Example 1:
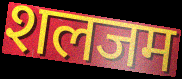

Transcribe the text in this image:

शलजम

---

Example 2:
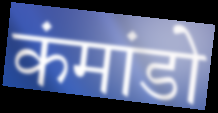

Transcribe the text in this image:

कंमांडो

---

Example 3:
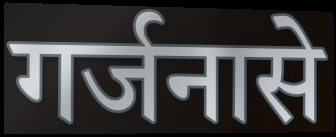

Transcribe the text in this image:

गर्जनासे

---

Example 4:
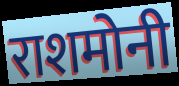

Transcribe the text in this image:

राशमोनी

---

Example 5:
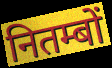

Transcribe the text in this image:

नितम्बों